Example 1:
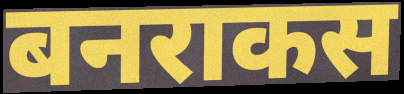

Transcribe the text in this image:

बनराकस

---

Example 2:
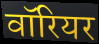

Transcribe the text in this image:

वॉरियर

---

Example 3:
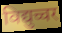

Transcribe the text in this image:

विद्युच्चर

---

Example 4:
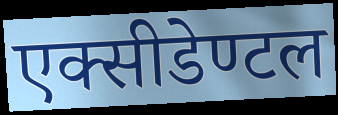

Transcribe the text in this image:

एक्सीडेण्टल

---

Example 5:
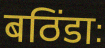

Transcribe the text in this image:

बठिंडाः